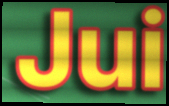
Jui